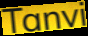
Tanvi